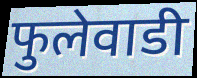
फुलेवाडी